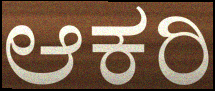
ಆಕರಿ